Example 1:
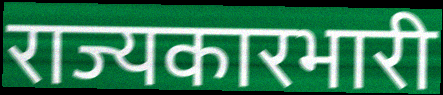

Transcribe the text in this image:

राज्यकारभारी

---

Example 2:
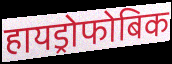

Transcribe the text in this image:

हायड्रोफोबिक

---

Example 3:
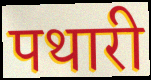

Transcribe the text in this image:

पथारी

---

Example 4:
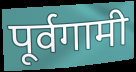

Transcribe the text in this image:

पूर्वगामी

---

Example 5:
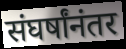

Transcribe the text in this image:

संघर्षांनंतर